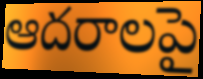
ఆదరాలపై